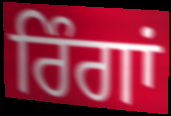
ਰਿੰਗਾਂ